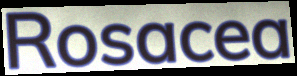
Rosacea